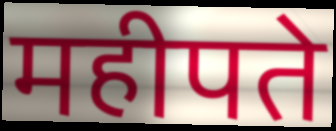
महीपते